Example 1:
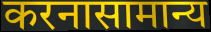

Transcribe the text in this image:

करनासामान्य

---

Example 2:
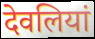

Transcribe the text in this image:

देवलियां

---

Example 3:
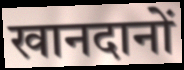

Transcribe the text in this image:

खानदानों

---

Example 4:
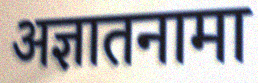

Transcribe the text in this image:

अज्ञातनामा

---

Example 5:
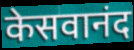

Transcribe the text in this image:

केसवानंद